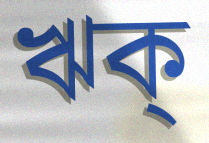
ঋক্